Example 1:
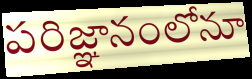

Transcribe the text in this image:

పరిజ్ఞానంలోనూ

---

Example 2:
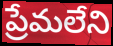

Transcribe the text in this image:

ప్రేమలేని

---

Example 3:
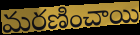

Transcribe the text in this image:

మరణించాయి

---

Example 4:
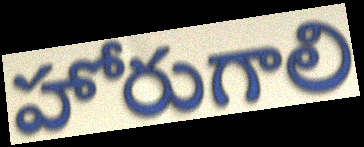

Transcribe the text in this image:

హోరుగాలి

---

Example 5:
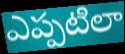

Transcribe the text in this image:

ఎప్పటిలా